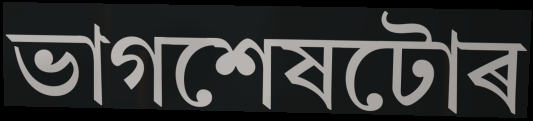
ভাগশেষটোৰ